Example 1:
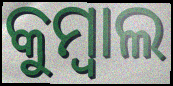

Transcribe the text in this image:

କୁମ୍ବାଲ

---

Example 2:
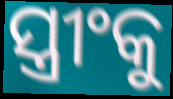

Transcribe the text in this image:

ସ୍ତ୍ରୀଂକୁ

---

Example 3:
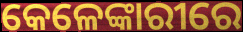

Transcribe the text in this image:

କେଳେଙ୍କାରୀରେ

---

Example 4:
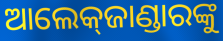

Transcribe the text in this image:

ଆଲେକ୍‌ଜାଣ୍ଡାରଙ୍କୁ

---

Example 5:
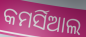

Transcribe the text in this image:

କମର୍ସିଆଲ